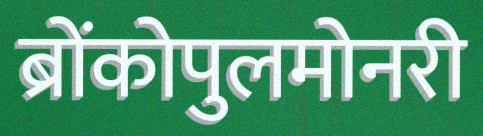
ब्रोंकोपुलमोनरी